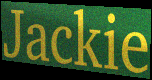
Jackie